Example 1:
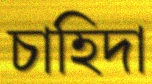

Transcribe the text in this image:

চাহিদা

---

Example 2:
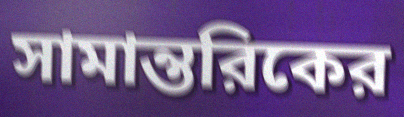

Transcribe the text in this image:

সামান্তরিকের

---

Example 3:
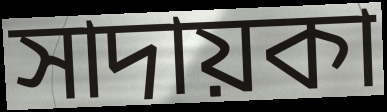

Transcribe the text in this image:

সাদায়কা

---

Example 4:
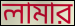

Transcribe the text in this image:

লামার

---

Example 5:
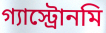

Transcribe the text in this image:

গ্যাস্ট্রোনমি